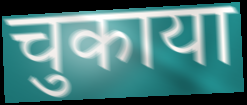
चुकाया